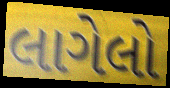
લાગેલો